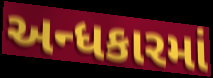
અન્ધકારમાં